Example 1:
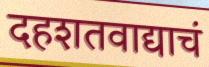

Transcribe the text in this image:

दहशतवाद्याचं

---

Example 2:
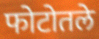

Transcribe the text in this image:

फोटोतले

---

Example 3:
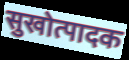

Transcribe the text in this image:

सुखोत्पादक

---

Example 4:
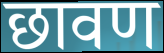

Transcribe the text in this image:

छावण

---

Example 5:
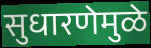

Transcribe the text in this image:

सुधारणेमुळे